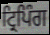
ਟ੍ਰਿਪਿੰਗ